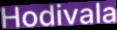
Hodivala